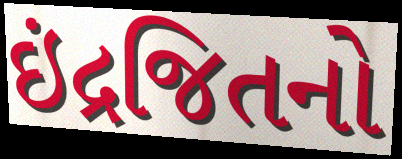
ઇંદ્રજિતનો